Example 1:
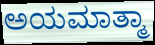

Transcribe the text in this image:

ಅಯಮಾತ್ಮಾ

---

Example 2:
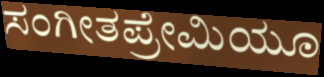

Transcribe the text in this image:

ಸಂಗೀತಪ್ರೇಮಿಯೂ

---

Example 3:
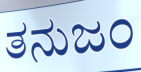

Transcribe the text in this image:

ತನುಜಂ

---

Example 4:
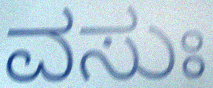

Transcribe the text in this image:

ವಸುಃ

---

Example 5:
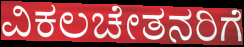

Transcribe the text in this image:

ವಿಕಲಚೇತನರಿಗೆ